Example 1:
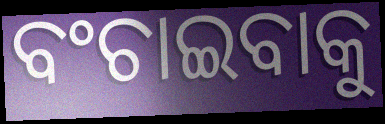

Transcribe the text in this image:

ବଂଚାଇବାକୁ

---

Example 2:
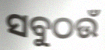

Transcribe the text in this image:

ସବୁଠଉଁ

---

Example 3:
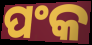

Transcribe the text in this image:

ପଂକ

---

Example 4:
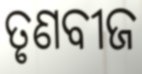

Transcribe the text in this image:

ତୃଣବୀଜ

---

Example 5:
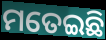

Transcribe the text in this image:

ମତେଇଛି